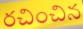
రచించిన